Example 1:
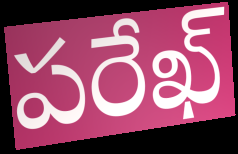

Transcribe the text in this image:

పరేఖ్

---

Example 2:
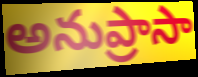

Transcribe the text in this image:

అనుప్రాసా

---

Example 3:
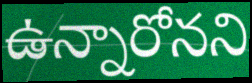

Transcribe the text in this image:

ఉన్నారోనని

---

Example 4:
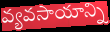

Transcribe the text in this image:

వ్యవసాయాన్ని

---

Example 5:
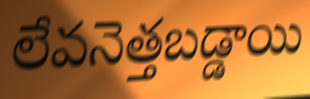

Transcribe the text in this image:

లేవనెత్తబడ్డాయి